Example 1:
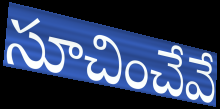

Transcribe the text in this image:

సూచించేవే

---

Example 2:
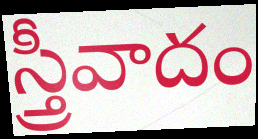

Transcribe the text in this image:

స్త్రీవాదం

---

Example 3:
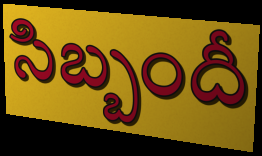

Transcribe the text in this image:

సిబ్బందీ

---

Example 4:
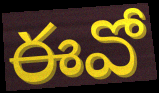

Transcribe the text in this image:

ఈవో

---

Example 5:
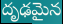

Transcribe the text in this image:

దృఢమైన